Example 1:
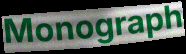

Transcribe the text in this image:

Monograph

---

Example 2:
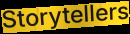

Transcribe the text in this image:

Storytellers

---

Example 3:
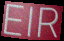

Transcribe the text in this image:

EIR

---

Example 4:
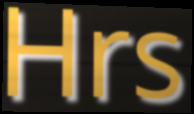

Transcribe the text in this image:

Hrs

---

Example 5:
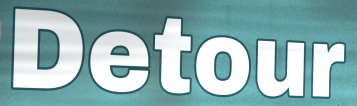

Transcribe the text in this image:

Detour